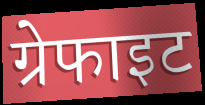
ग्रेफाइट